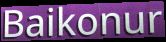
Baikonur